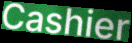
Cashier